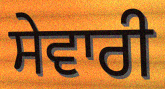
ਸੇਵਾਰੀ